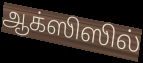
ஆக்ஸிஸில்